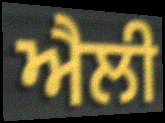
ਐਲੀ